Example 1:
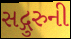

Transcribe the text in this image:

સદ્ગુરુની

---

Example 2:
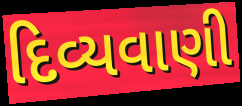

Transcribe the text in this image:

દિવ્યવાણી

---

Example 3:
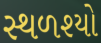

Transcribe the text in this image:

સ્થળશ્યો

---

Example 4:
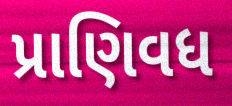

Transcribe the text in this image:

પ્રાણિવધ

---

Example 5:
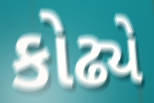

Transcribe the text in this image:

કોઢ્યે